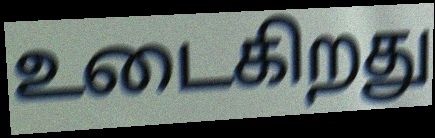
உடைகிறது